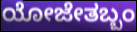
ಯೋಜೇತಬ್ಬಂ